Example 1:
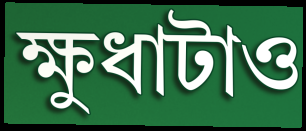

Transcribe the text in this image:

ক্ষুধাটাও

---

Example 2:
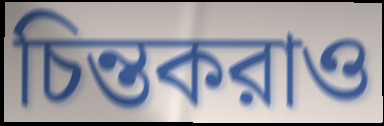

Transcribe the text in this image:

চিন্তকরাও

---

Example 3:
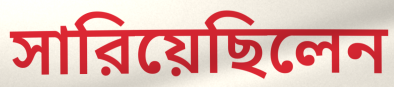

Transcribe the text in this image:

সারিয়েছিলেন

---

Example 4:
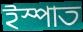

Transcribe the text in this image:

ইস্পাত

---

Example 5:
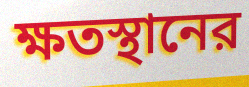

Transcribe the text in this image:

ক্ষতস্থানের